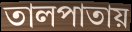
তালপাতায়